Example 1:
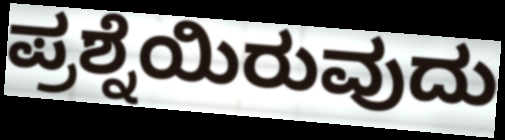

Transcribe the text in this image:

ಪ್ರಶ್ನೆಯಿರುವುದು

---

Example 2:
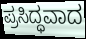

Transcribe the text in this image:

ಪ್ರಸಿದ್ಧವಾದ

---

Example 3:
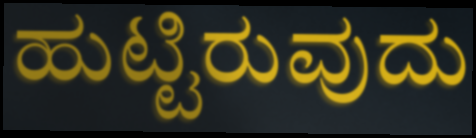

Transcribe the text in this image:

ಹುಟ್ಟಿರುವುದು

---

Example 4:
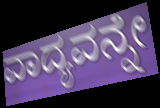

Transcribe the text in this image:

ವಾದ್ಯವನ್ನೇ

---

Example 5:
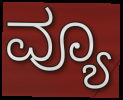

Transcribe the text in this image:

ವ್ಯೂ